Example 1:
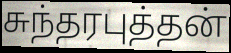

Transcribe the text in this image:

சுந்தரபுத்தன்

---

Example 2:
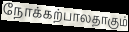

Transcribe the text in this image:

நோக்கற்பாலதாகும்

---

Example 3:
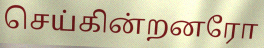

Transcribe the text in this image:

செய்கின்றனரோ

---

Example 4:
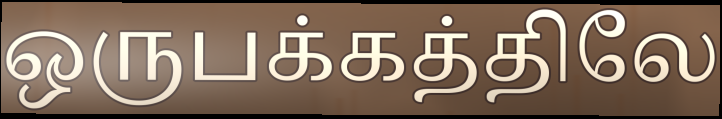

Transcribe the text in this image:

ஒருபக்கத்திலே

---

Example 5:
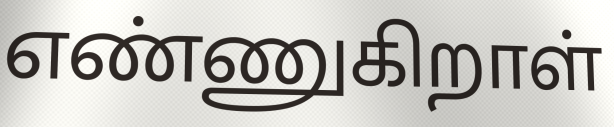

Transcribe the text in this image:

எண்ணுகிறாள்